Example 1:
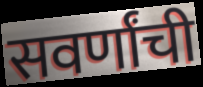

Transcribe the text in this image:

सवर्णांची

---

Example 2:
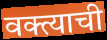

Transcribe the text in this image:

वक्त्याची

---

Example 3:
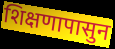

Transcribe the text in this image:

शिक्षणापासुन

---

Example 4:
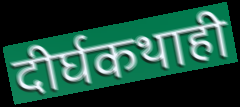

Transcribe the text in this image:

दीर्घकथाही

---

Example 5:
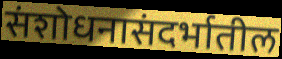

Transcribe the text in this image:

संशोधनासंदर्भातील